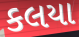
કલયા